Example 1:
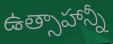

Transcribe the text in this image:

ఉత్సాహాన్నీ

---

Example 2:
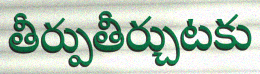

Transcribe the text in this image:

తీర్పుతీర్చుటకు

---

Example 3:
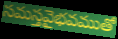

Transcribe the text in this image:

సమస్తవైభవముతో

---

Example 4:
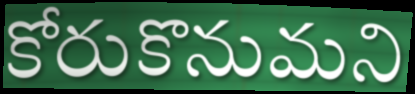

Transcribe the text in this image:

కోరుకొనుమని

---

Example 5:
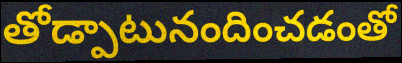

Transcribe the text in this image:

తోడ్పాటునందించడంతో